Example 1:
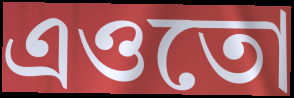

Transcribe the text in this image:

এওতো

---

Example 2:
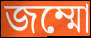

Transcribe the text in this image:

জম্মো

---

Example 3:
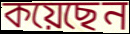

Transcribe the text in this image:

কয়েছেন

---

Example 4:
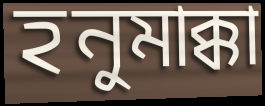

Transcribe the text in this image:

হনুমাক্কা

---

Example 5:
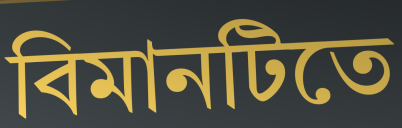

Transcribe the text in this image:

বিমানটিতে